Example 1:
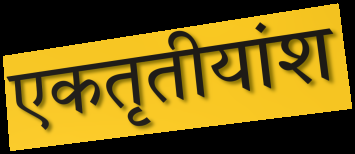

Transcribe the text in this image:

एकतृतीयांश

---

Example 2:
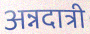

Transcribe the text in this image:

अन्नदात्री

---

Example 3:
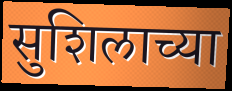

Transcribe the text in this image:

सुशिलाच्या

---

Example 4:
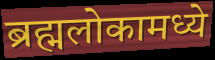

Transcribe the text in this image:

ब्रह्मलोकामध्ये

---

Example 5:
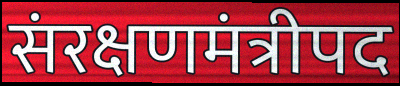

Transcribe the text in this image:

संरक्षणमंत्रीपद